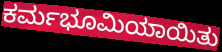
ಕರ್ಮಭೂಮಿಯಾಯಿತು